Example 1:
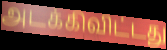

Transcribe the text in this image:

அடக்கிவிட்டது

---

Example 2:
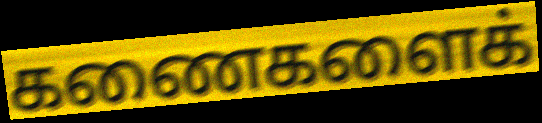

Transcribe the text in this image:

கணைகளைக்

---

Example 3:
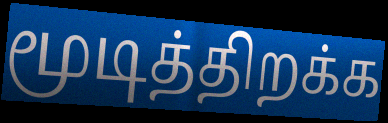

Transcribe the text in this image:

மூடித்திறக்க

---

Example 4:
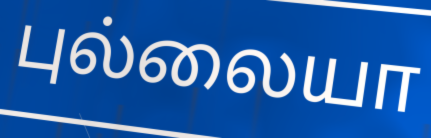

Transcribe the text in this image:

புல்லையா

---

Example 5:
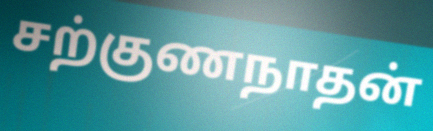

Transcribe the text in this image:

சற்குணநாதன்